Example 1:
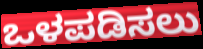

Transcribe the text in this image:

ಒಳಪಡಿಸಲು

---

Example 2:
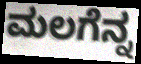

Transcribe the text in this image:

ಮಲಗೆನ್ನ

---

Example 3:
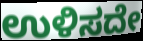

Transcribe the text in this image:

ಉಳಿಸದೇ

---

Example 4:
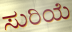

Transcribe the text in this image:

ಸುರಿಯೆ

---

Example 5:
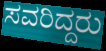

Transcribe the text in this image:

ಸವರಿದ್ದರು